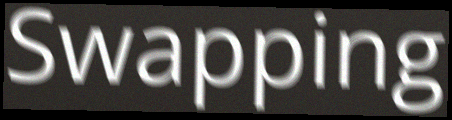
Swapping